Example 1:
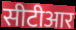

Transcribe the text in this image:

सीटीआर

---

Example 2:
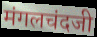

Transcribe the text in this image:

मंगलचंदजी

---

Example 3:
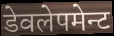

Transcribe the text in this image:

डेवलेपमेन्ट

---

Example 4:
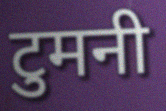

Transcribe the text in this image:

टुमनी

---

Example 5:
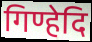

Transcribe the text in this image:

गिण्हेदि